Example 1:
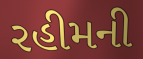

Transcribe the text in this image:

રહીમની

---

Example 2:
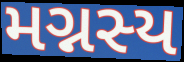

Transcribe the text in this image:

મગ્નસ્ય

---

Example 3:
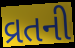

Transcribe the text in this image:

વ્રતની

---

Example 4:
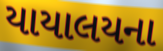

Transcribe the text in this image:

યાયાલયના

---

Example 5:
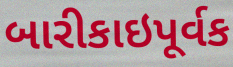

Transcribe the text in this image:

બારીકાઇપૂર્વક